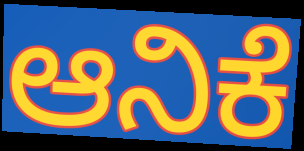
ಆನಿಕೆ